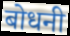
बोधनी